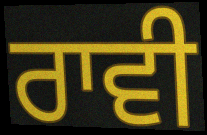
ਰਾਵੀ